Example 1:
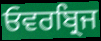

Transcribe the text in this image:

ਓਵਰਬ੍ਰਿਜ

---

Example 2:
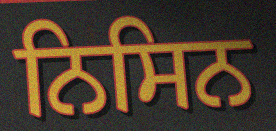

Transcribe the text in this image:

ਨਿਸਿਨ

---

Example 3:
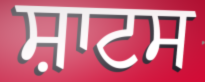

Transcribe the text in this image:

ਸ਼ਾਟਸ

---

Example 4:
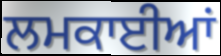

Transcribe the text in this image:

ਲਮਕਾਈਆਂ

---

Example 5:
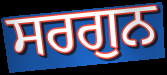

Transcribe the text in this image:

ਸਰਗੁਨ